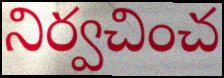
నిర్వచించ